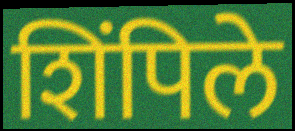
शिंपिले